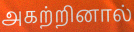
அகற்றினால்